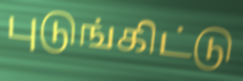
புடுங்கிட்டு